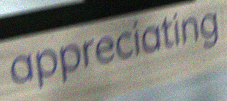
appreciating